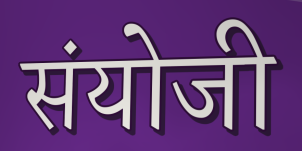
संयोजी